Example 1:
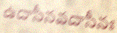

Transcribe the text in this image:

ఉదాసీనవదాసీనః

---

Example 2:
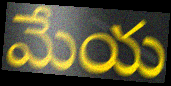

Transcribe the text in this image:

మేయ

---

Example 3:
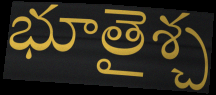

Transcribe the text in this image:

భూతైశ్చ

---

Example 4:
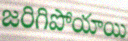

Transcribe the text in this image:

జరిగిపోయాయి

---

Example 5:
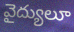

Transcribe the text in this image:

వైద్యులూ